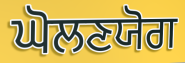
ਘੋਲਣਯੋਗ